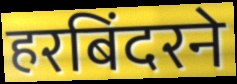
हरबिंदरने